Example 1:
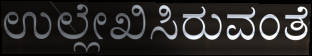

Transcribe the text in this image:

ಉಲ್ಲೇಖಿಸಿರುವಂತೆ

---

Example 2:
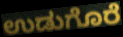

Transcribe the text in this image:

ಉಡುಗೊರೆ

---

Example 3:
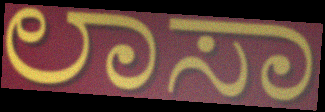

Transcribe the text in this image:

ಲಾಸಾ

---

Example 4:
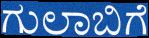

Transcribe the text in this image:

ಗುಲಾಬಿಗೆ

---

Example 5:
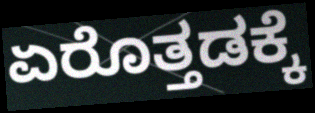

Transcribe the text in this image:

ಏರೊತ್ತಡಕ್ಕೆ